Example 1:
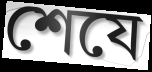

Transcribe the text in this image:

শেযে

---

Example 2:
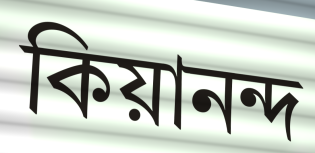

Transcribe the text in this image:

কিয়ানন্দ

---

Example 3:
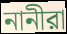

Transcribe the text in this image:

নানীরা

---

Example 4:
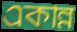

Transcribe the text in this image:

একান্ন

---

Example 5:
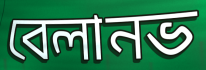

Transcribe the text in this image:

বেলানভ